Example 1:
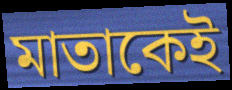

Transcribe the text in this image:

মাতাকেই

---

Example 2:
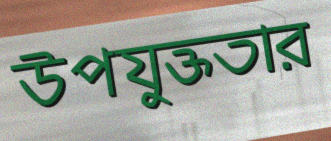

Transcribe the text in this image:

উপযুক্ততার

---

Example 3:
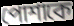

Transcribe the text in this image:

পোশাকে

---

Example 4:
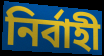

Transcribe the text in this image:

নির্বাহী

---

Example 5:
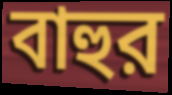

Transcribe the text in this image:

বাহুর